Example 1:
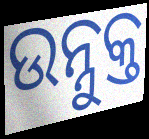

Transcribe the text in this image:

ଉନ୍ନୁକ୍ତ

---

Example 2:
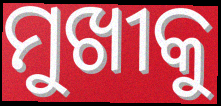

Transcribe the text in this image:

ମୁଖୀକୁ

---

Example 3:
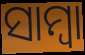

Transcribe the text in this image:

ସାମ୍ବା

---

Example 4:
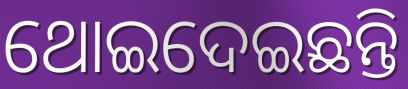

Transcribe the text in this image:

ଥୋଇଦେଇଛନ୍ତି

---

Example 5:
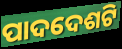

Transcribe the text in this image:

ପାଦଦେଶଟି